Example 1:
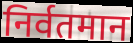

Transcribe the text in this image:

निर्वतमान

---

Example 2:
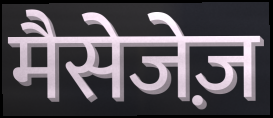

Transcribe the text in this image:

मैसेजेज़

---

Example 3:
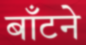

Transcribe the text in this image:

बाँटने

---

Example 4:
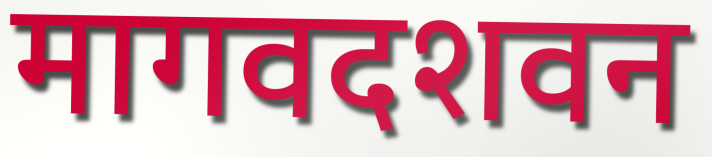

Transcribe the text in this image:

मागवदशवन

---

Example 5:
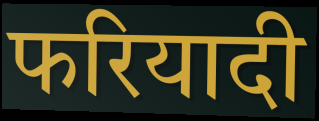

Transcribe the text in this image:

फरियादी